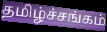
தமிழ்ச்சங்கம்